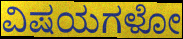
ವಿಷಯಗಳೋ